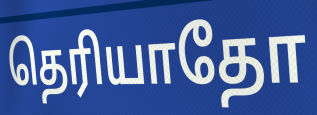
தெரியாதோ